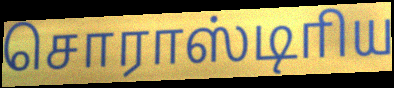
சொராஸ்டிரிய